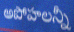
అపోహలన్నీ